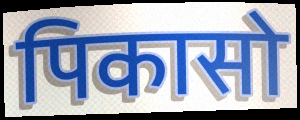
पिकासो